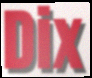
Dix